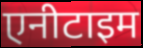
एनीटाइम